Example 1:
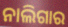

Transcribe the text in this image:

ନାଲିଗାର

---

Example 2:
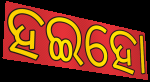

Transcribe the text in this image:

ହଇହୋ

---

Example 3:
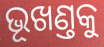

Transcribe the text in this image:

ଭୂଖଣ୍ତକୁ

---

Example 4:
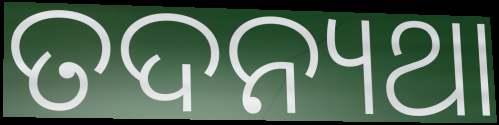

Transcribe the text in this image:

ତଦନ୍ୟଥା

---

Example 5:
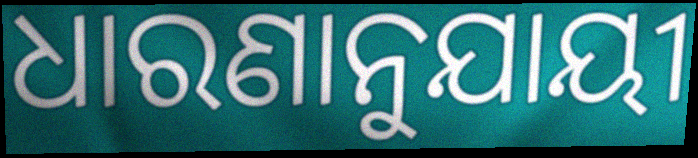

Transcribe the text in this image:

ଧାରଣାନୁଯାୟୀ